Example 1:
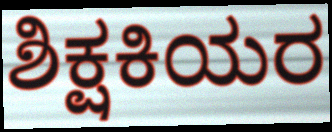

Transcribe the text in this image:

ಶಿಕ್ಷಕಿಯರ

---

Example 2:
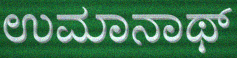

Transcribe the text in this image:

ಉಮಾನಾಥ್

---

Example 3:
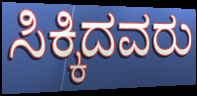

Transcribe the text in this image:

ಸಿಕ್ಕಿದವರು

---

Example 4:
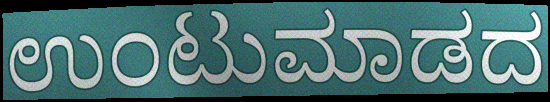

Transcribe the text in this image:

ಉಂಟುಮಾಡದ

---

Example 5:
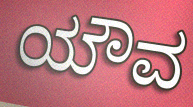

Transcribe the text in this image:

ಯೌವ